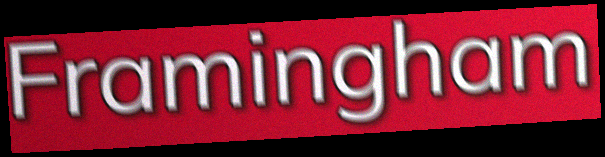
Framingham